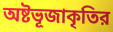
অষ্টভূজাকৃতির